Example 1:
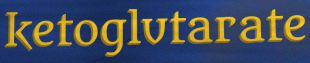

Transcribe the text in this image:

ketoglutarate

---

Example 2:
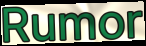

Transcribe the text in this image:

Rumor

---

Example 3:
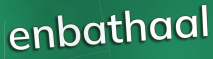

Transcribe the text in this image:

enbathaal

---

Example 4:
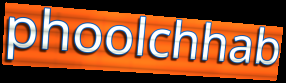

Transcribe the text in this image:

phoolchhab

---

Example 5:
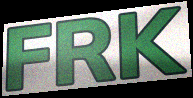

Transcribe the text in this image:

FRK